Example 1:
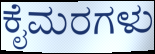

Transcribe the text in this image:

ಕೈಮರಗಳು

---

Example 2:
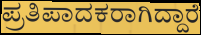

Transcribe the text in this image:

ಪ್ರತಿಪಾದಕರಾಗಿದ್ದಾರೆ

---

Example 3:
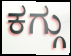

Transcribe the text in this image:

ಕಗ್ಗು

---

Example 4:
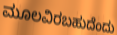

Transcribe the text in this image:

ಮೂಲವಿರಬಹುದೆಂದು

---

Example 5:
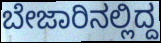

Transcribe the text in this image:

ಬೇಜಾರಿನಲ್ಲಿದ್ದ